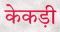
केकड़ी